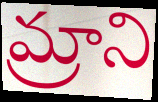
మ్రాని